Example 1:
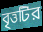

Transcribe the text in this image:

বৃত্তটির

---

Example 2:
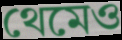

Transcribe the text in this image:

থেমেও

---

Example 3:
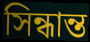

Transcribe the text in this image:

সিন্ধান্ত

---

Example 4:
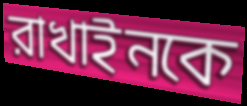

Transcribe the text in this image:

রাখাইনকে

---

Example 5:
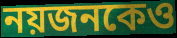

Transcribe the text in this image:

নয়জনকেও